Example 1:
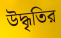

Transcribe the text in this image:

উদ্ধৃতির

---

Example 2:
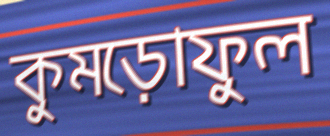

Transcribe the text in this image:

কুমড়োফুল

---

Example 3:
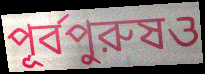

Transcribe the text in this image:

পূর্বপুরুষও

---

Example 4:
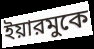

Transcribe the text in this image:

ইয়ারমুকে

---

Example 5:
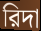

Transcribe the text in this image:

রিদা